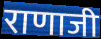
राणाजी